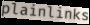
plainlinks